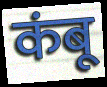
कंबू